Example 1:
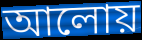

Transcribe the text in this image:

আলোয়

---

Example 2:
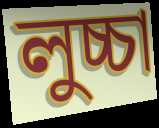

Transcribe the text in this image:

লুচ্চা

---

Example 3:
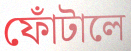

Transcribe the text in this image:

ফোঁটালে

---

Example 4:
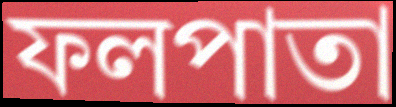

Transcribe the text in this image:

ফলপাতা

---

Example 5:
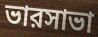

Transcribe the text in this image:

ভারসাভা